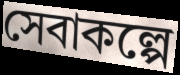
সেবাকল্পে